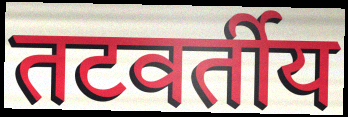
तटवर्तीय